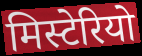
मिस्टेरियो